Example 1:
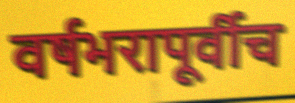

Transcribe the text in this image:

वर्षभरापूर्वीच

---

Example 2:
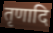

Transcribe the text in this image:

तृणादि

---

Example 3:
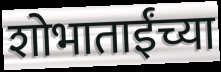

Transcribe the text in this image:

शोभाताईंच्या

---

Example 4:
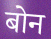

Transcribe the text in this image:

बोन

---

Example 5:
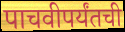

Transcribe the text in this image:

पाचवीपर्यंतची